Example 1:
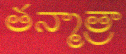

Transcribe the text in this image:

తన్మాత్రా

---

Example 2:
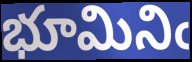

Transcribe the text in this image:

భూమినిఁ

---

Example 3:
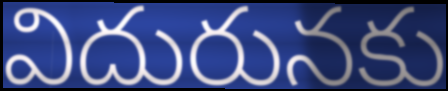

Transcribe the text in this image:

విదురునకు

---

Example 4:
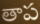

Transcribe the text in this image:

తాప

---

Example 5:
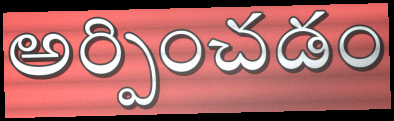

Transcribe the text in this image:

అర్పించడం